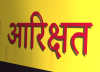
आरिक्षत